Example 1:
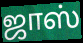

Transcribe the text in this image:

ஜாஸ்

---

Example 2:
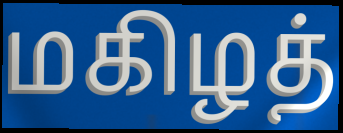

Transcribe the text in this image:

மகிழத்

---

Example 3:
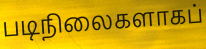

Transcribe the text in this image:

படிநிலைகளாகப்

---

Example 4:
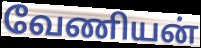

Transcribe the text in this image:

வேணியன்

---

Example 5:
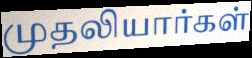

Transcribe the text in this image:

முதலியார்கள்